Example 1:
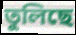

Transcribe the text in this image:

তুলিছে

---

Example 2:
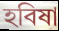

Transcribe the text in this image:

হবিষা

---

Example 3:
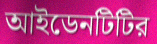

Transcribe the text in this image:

আইডেনটিটির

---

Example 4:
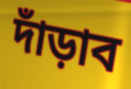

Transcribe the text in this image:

দাঁড়াব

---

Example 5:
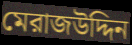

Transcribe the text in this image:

মেরাজউদ্দিন